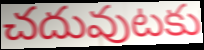
చదువుటకు